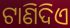
ଟାଣିଦିଏ